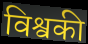
विश्वकी